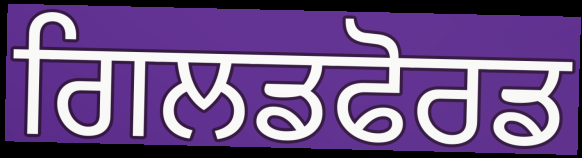
ਗਿਲਡਫੋਰਡ